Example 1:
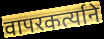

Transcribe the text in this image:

वापरकर्त्याने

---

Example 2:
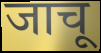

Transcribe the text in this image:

जाचू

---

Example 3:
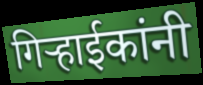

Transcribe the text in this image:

गिऱ्हाईकांनी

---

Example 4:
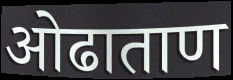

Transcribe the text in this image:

ओढाताण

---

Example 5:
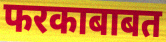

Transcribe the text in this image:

फरकाबाबत